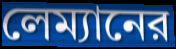
লেম্যানের